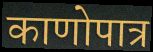
काणोपात्र